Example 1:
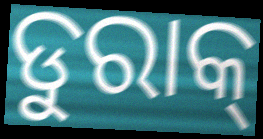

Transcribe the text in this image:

ଡୁରାକ୍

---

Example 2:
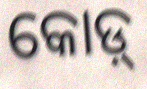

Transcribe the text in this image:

କୋଡ଼୍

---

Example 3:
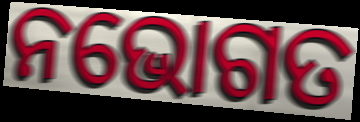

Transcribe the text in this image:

ନଭୋଗତ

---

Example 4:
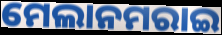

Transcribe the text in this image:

ମେଲାନମରାଇ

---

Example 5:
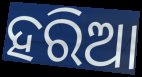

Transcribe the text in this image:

ହରିଆ